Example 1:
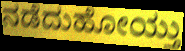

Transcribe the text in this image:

ನಡೆದುಹೋಯ್ತು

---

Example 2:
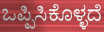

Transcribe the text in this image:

ಒಪ್ಪಿಸಿಕೊಳ್ಳದೆ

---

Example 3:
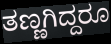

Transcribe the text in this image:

ತಣ್ಣಗಿದ್ದರೂ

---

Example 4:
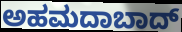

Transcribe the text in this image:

ಅಹಮದಾಬಾದ್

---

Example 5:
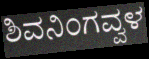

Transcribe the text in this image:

ಶಿವನಿಂಗವ್ವಳ